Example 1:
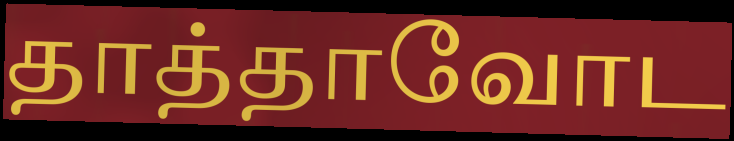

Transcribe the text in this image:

தாத்தாவோட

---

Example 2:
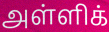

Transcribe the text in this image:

அள்ளிக்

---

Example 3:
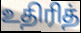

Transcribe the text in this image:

உதிரித்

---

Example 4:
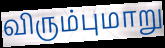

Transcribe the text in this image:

விரும்புமாறு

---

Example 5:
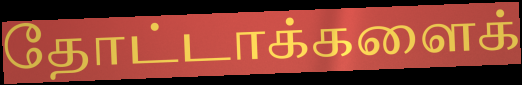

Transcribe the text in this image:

தோட்டாக்களைக்